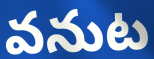
వనుట